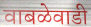
वाबळेवाडी